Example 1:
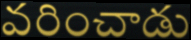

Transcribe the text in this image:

వరించాడు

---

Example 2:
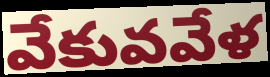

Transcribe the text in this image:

వేకువవేళ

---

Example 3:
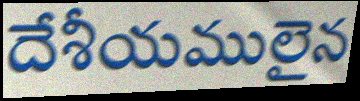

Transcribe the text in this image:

దేశీయములైన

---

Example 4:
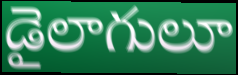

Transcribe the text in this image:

డైలాగులూ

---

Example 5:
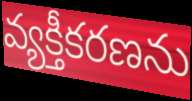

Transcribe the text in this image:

వ్యక్తీకరణను